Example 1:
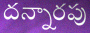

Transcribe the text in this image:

దన్నారపు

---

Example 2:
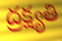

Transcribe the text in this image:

ద్రక్ష్యతి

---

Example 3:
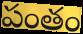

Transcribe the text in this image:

పంతం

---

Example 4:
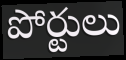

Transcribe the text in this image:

పోర్టులు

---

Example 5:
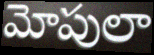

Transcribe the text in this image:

మోపులా